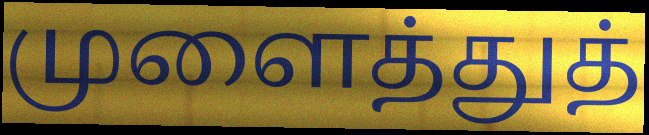
முளைத்துத்